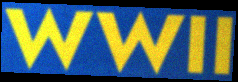
WWII